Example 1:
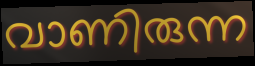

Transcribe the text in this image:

വാണിരുന്ന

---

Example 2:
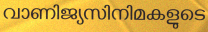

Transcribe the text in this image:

വാണിജ്യസിനിമകളുടെ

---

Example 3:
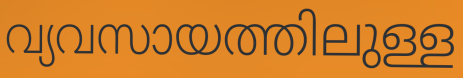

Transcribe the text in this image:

വ്യവസായത്തിലുള്ള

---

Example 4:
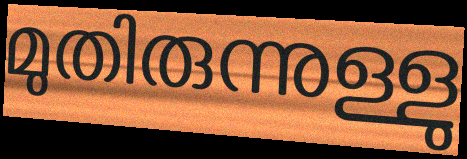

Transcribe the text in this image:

മുതിരുന്നുള്ളു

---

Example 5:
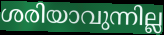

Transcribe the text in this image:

ശരിയാവുന്നില്ല